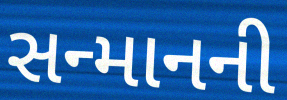
સન્માનની